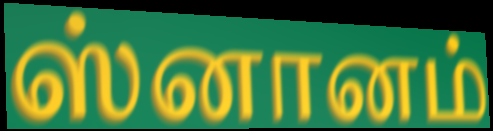
ஸ்னானம்